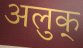
अलुक्